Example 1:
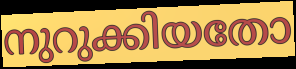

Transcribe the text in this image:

നുറുക്കിയതോ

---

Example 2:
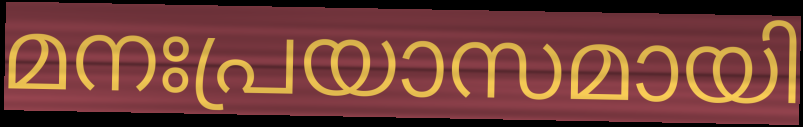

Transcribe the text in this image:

മനഃപ്രയാസമായി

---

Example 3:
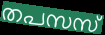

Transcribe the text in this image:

തപസസ്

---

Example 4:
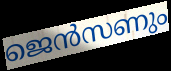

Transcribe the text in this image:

ജെൻസണും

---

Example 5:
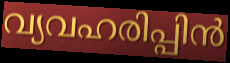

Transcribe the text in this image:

വ്യവഹരിപ്പിൻ